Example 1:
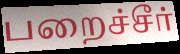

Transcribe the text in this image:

பறைச்சீர்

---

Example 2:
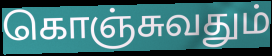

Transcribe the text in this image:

கொஞ்சுவதும்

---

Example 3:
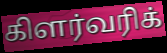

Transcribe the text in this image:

கிளர்வரிக்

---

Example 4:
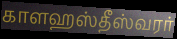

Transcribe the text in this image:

காளஹஸ்தீஸ்வரர்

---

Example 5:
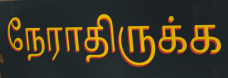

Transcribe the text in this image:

நேராதிருக்க